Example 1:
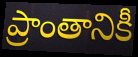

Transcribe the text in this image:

ప్రాంతానికీ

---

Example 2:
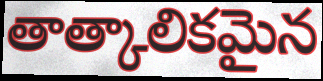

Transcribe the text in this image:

తాత్కాలికమైన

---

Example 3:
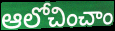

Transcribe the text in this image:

ఆలోచించాం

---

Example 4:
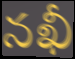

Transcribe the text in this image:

నఖీ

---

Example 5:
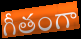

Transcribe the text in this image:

గీతంగా